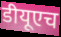
डीयूएच